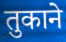
तुकाने